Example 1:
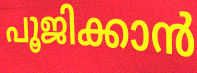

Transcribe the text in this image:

പൂജിക്കാൻ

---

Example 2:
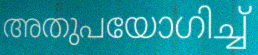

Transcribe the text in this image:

അതുപയോഗിച്ച്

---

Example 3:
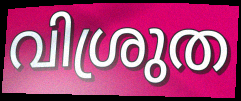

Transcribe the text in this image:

വിശ്രുത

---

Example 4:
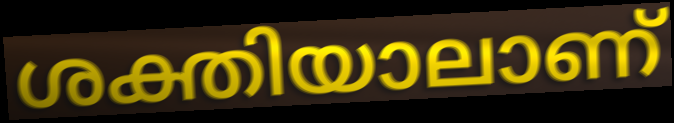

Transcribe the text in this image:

ശക്തിയാലാണ്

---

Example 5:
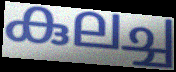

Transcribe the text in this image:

കുലച്ച